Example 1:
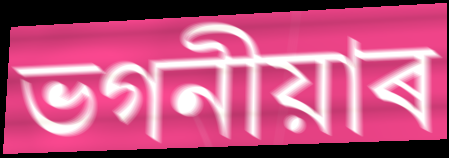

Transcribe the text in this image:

ভগনীয়াৰ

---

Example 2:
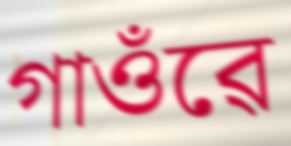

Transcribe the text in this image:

গাওঁৱে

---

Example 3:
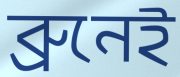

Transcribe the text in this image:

ব্ৰুনেই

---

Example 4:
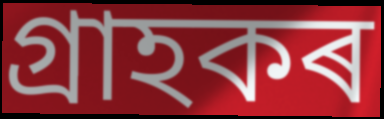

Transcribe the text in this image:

গ্ৰাহকৰ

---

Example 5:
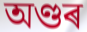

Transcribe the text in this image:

অণ্ডৰ